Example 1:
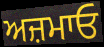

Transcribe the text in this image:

ਅਜ਼ਮਾਓ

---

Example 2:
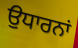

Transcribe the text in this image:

ਉਧਾਰਨਾਂ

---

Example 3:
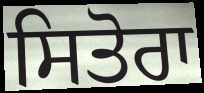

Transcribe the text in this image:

ਸਿਤੋਰਾ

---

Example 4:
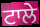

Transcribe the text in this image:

ਟਾਲੇ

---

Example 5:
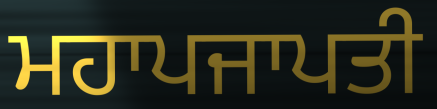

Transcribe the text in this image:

ਮਹਾਪਜਾਪਤੀ